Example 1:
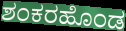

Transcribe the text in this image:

ಶಂಕರಹೊಂಡ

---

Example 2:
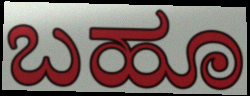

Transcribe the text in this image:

ಬಹೂ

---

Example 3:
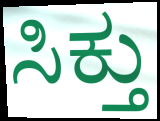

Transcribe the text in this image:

ಸಿಕ್ತು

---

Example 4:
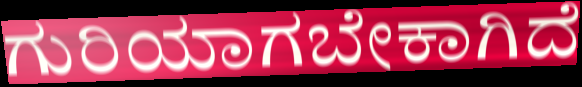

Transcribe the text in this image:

ಗುರಿಯಾಗಬೇಕಾಗಿದೆ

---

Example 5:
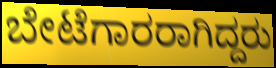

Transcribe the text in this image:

ಬೇಟೆಗಾರರಾಗಿದ್ದರು